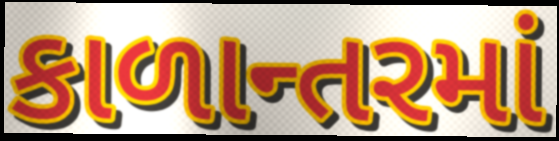
કાળાન્તરમાં